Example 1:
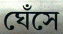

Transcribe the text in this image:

ঘেঁসে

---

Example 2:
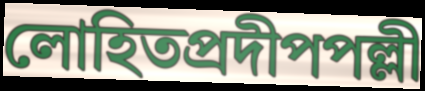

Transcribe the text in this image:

লোহিতপ্রদীপপল্লী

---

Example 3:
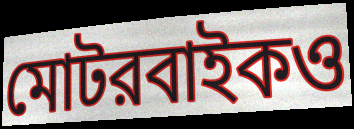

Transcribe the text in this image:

মোটরবাইকও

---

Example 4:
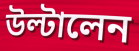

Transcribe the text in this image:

উল্টালেন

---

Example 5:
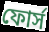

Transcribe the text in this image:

ফোর্স